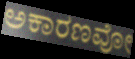
ಅಕಾರಣವೋ